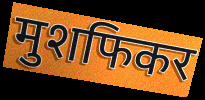
मुशफिकर